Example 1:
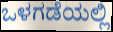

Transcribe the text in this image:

ಒಳಗಡೆಯಲ್ಲಿ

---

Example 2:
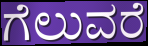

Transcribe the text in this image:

ಗೆಲುವರೆ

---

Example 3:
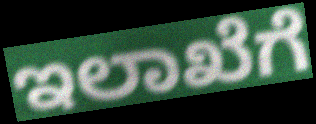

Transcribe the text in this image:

ಇಲಾಖೆಗೆ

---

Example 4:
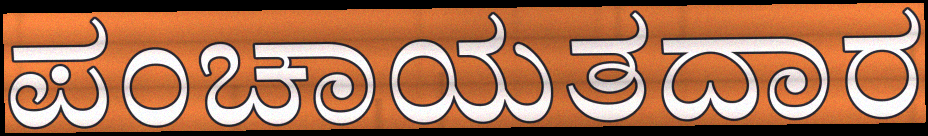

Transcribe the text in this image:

ಪಂಚಾಯತದಾರ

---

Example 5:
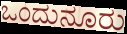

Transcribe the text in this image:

ಒಂದುನೂರು